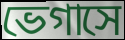
ভেগাসে